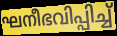
ഘനീഭവിപ്പിച്ച്